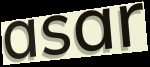
asar